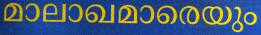
മാലാഖമാരെയും